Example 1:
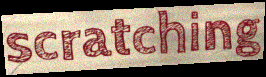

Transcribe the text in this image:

scratching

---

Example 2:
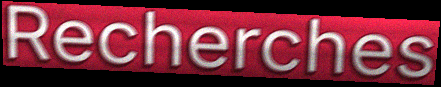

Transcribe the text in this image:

Recherches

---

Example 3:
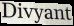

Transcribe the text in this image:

Divyant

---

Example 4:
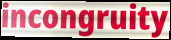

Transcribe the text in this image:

incongruity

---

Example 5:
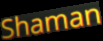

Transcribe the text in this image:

Shaman